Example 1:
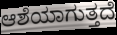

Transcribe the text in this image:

ಆಶೆಯಾಗುತ್ತದೆ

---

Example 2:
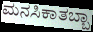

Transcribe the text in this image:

ಮನಸಿಕಾತಬ್ಬಾ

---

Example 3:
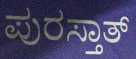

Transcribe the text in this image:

ಪುರಸ್ತಾತ್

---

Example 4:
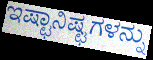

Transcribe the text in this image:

ಇಷ್ಟಾನಿಷ್ಟಗಳನ್ನು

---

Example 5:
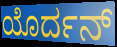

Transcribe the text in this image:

ಯೊರ್ದನ್